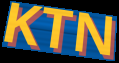
KTN